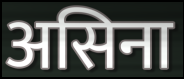
असिना